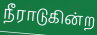
நீராடுகின்ற